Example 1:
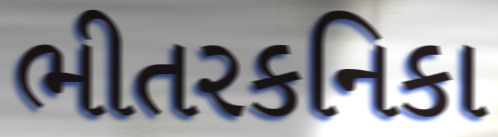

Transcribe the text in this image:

ભીતરકનિકા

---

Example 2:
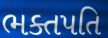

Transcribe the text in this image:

ભક્તપતિ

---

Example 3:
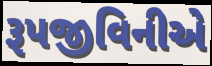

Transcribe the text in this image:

રૂપજીવિનીએ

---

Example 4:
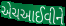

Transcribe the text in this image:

એચઆઈવીને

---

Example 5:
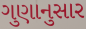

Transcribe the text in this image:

ગુણાનુસાર